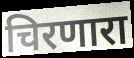
चिरणारा